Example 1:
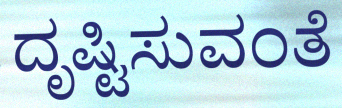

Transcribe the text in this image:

ದೃಷ್ಟಿಸುವಂತೆ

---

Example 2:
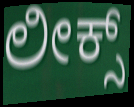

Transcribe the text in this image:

ಲೀಕ್ಸ್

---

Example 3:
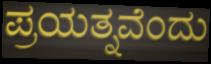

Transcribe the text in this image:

ಪ್ರಯತ್ನವೆಂದು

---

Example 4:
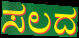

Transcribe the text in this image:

ಸಲದ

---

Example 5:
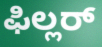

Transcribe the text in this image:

ಫಿಲ್ಲರ್